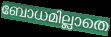
ബോധമില്ലാതെ